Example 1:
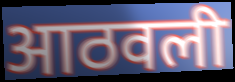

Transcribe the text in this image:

आठवली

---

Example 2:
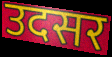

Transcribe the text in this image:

उदसर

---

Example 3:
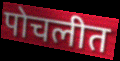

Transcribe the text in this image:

पोचलीत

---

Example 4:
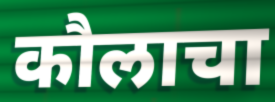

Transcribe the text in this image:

कौलाचा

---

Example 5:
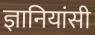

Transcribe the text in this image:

ज्ञानियांसी